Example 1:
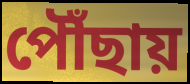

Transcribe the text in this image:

পৌঁছায়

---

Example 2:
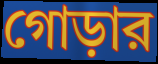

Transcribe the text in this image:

গোড়ার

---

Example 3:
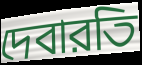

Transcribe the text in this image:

দেবারতি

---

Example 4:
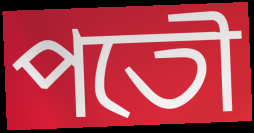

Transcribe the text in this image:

পতৌ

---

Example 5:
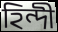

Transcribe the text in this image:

হিন্দী